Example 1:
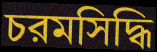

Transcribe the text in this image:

চরমসিদ্ধি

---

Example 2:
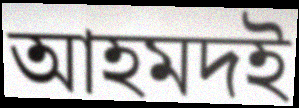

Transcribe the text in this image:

আহমদই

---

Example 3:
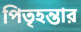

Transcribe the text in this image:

পিতৃহন্তার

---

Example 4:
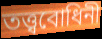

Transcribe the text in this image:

তত্ত্ববোধিনী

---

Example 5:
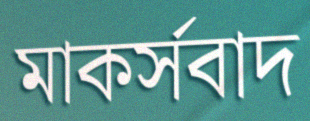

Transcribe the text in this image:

মাকর্সবাদ